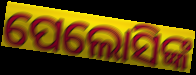
ପେଲୋସିଙ୍କ